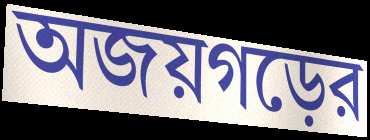
অজয়গড়ের